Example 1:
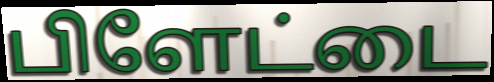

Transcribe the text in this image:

பிளேட்டை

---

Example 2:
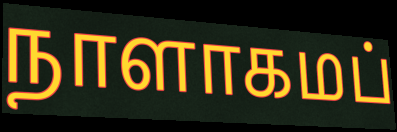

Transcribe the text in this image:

நாளாகமப்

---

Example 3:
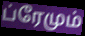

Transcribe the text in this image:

ப்ரேமும்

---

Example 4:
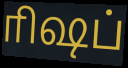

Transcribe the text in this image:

ரிஷப்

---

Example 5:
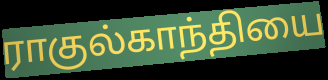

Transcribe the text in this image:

ராகுல்காந்தியை